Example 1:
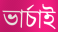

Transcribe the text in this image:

ভাৰ্চাই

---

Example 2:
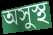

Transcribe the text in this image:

অসুস্থ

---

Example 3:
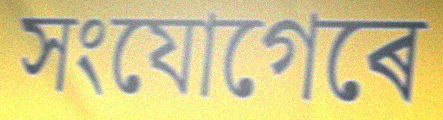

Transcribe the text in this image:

সংযোগেৰে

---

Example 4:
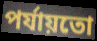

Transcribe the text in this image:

পৰ্যায়তো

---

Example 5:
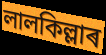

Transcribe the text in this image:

লালকিল্লাৰ